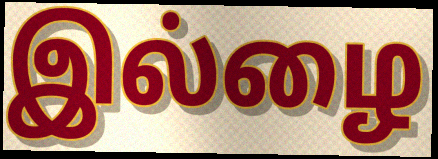
இல்ழை